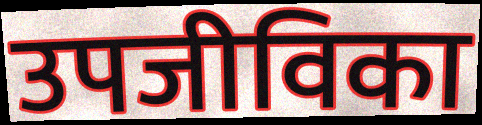
उपजीविका